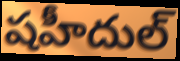
షహీదుల్